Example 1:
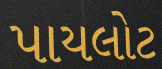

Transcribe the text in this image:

પાયલોટ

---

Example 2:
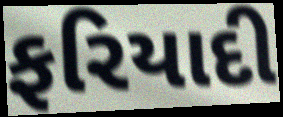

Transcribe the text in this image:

ફરિયાદી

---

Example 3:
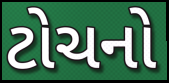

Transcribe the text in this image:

ટોચનો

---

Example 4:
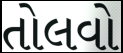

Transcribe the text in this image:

તોલવો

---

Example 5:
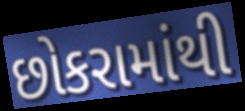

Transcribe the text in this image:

છોકરામાંથી